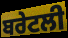
ਬਰੇਟਲੀ